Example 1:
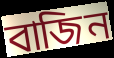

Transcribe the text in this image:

বাজিন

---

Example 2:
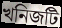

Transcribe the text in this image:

খনিজটি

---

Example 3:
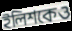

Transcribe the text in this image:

ইলিশকেও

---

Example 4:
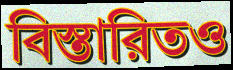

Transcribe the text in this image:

বিস্তারিতও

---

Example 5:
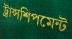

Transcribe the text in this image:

ট্রান্সশিপমেন্ট